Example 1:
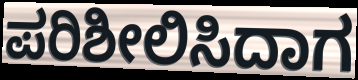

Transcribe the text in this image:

ಪರಿಶೀಲಿಸಿದಾಗ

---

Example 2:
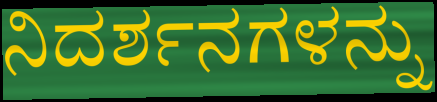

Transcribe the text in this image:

ನಿದರ್ಶನಗಳನ್ನು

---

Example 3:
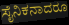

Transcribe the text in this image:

ಸೈನಿಕನಾದರೂ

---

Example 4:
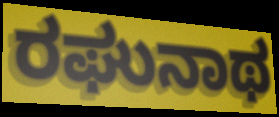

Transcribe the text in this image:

ರಘುನಾಥ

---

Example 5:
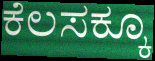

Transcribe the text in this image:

ಕೆಲಸಕ್ಕೂ